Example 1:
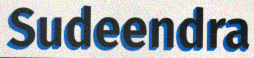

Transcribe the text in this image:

Sudeendra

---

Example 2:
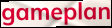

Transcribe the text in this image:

gameplan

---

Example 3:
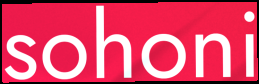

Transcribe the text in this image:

sohoni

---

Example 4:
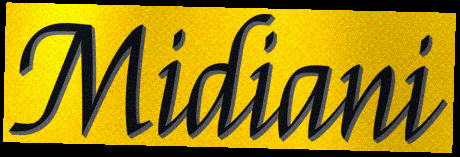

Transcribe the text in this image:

Midiani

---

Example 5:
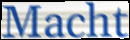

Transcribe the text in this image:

Macht